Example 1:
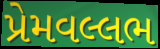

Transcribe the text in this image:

પ્રેમવલ્લભ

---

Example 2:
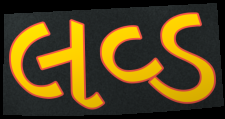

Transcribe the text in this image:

લવ્ડ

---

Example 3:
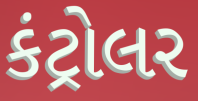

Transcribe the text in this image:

કંટ્રોલર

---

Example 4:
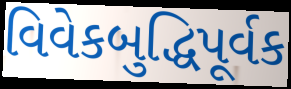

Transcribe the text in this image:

વિવેકબુદ્ધિપૂર્વક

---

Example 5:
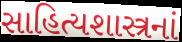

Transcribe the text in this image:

સાહિત્યશાસ્ત્રનાં